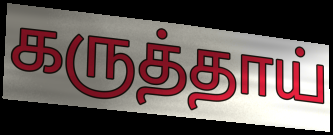
கருத்தாய்